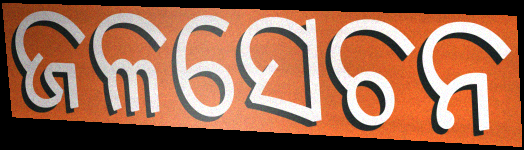
ଜଳସେଚନ